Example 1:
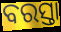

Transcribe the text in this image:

ବରସ୍ତା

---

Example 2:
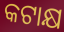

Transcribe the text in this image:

କଟାକ୍ଷ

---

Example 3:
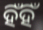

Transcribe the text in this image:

ହିଁହିଁ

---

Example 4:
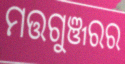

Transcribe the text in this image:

ମତ୍ତଗୁଞ୍ଜରର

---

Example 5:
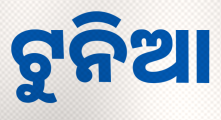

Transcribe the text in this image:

ଟୁନିଆ